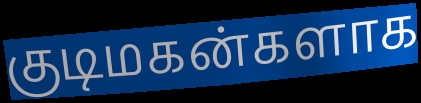
குடிமகன்களாக